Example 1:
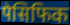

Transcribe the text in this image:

पेसिफिक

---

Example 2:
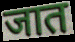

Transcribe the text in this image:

जात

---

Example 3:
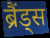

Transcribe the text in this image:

ब्रैंड्स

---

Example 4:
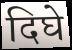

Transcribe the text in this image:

दिघे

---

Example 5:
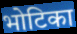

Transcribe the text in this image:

भोटिका